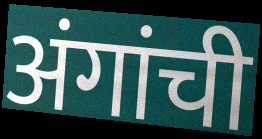
अंगांची